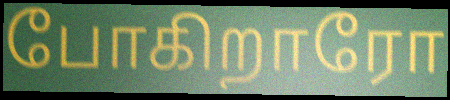
போகிறாரோ